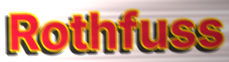
Rothfuss